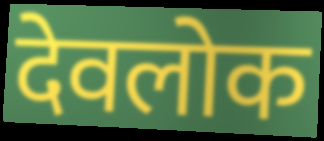
देवलोक